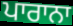
ਪਾਰਾਨਾ